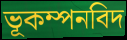
ভূকম্পনবিদ